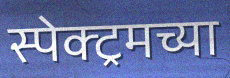
स्पेक्ट्रमच्या